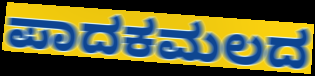
ಪಾದಕಮಲದ